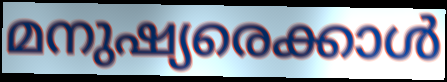
മനുഷ്യരെക്കാൾ